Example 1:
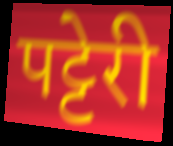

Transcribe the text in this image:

पट्टेरी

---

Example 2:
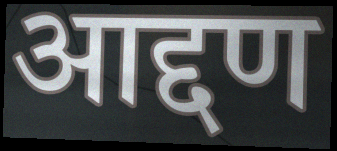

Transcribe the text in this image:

आद्दण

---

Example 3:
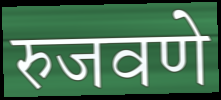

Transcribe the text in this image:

रुजवणे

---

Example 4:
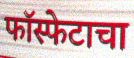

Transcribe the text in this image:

फॉस्फेटाचा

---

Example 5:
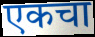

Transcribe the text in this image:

एकचा